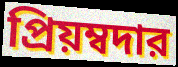
প্রিয়ম্বদার